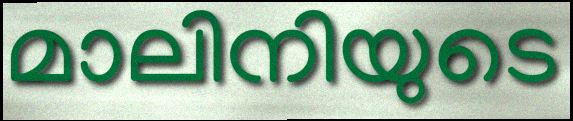
മാലിനിയുടെ